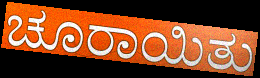
ಚೂರಾಯಿತು